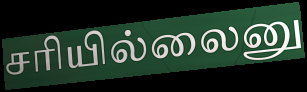
சரியில்லைனு